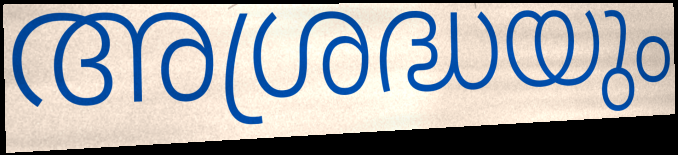
അശ്രദ്ധയും